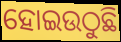
ହୋଇଉଠୁଛି